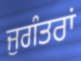
ਜੁਗੰਤਰਾਂ